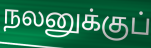
நலனுக்குப்